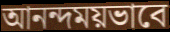
আনন্দময়ভাবে